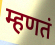
म्हणतं